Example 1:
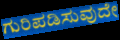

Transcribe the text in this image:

ಗುರಿಪಡಿಸುವುದೇ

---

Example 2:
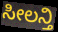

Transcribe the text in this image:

ಸೀಲನ್ತಿ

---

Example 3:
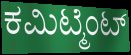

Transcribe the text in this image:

ಕಮಿಟ್ಮೆಂಟ್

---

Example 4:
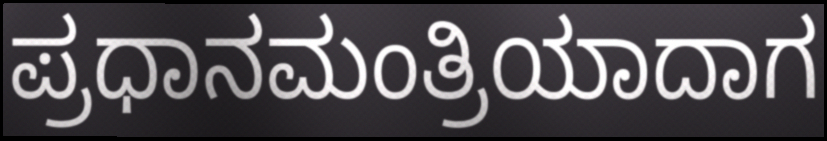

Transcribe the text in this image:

ಪ್ರಧಾನಮಂತ್ರಿಯಾದಾಗ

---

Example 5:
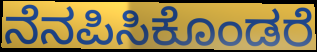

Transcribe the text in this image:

ನೆನಪಿಸಿಕೊಂಡರೆ